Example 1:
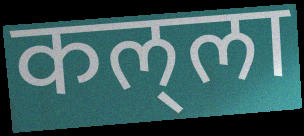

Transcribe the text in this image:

कल्ला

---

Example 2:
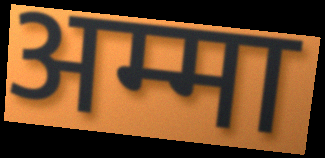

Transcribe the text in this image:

अम्मा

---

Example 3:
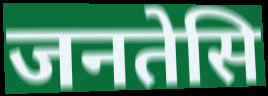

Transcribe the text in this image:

जनतेसि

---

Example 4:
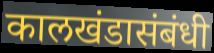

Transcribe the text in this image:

कालखंडासंबंधी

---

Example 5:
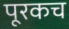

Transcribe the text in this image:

पूरकच